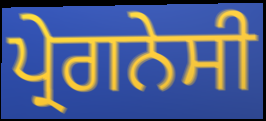
ਪ੍ਰੇਗਨੇਸੀ